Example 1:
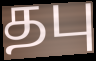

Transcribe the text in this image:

தபு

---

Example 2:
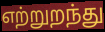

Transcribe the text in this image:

எற்றுறந்து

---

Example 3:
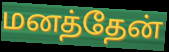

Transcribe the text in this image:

மனத்தேன்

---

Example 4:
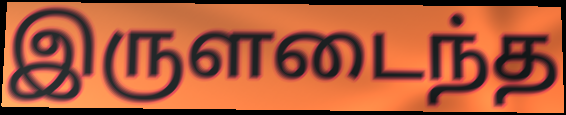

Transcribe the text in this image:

இருளடைந்த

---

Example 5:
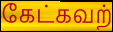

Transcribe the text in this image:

கேட்கவற்